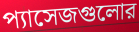
প্যাসেজগুলোর